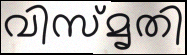
വിസ്മൃതി